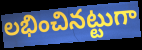
లభించినట్టుగా